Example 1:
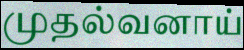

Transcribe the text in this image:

முதல்வனாய்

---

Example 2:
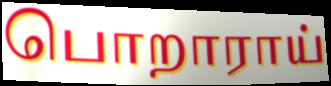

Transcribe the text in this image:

பொறாராய்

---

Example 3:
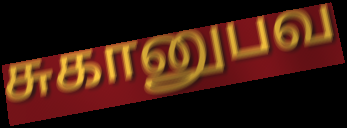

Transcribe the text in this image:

சுகானுபவ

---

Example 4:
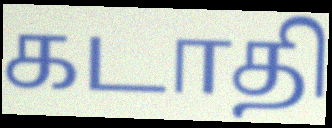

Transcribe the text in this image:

கடாதி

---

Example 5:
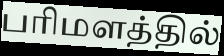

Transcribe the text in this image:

பரிமளத்தில்